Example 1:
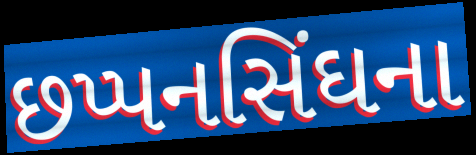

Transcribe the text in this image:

છપ્પનસિંઘના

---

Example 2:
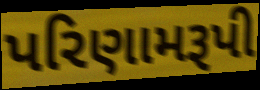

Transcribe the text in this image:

પરિણામરૂપી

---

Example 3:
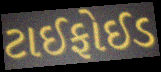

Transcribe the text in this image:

ટાઈફોઈડ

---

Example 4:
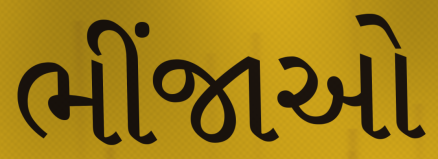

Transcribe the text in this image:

ભીંજાઓ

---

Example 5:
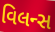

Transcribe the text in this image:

વિલન્સ